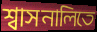
শ্বাসনালিতে